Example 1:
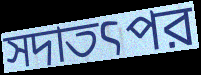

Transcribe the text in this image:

সদাতৎপর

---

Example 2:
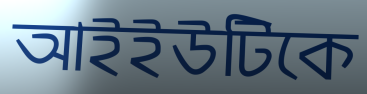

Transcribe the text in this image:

আইইউটিকে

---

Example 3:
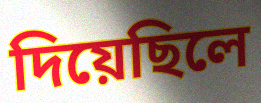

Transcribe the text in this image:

দিয়েছিলে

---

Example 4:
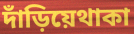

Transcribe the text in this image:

দাঁড়িয়েথাকা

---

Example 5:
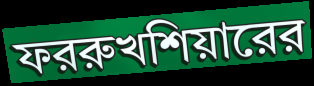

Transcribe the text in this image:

ফররুখশিয়ারের